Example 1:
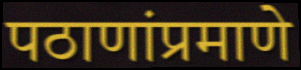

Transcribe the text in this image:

पठाणांप्रमाणे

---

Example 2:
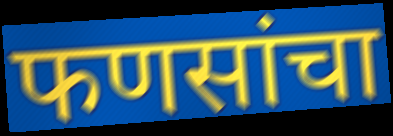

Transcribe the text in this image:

फणसांचा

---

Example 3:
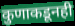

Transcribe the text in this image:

कुणाकडूनही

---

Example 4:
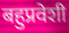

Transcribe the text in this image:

बहुप्रवेशी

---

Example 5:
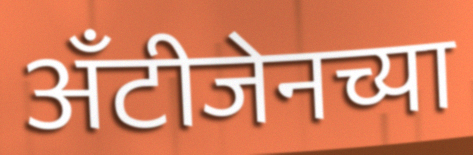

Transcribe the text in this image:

अँटीजेनच्या